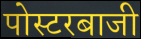
पोस्टरबाजी